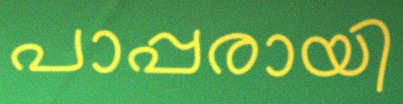
പാപ്പരായി